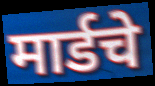
मार्डचे